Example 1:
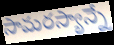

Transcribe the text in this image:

సామరస్యాన్నే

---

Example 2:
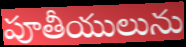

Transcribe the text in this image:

పూతీయులును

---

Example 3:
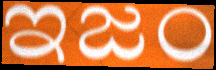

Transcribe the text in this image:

ఇజం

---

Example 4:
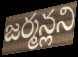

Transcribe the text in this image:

జర్మన్లని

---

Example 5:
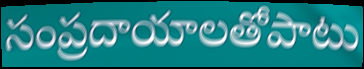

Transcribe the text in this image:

సంప్రదాయాలతోపాటు